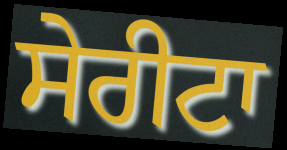
ਸੇਰੀਟਾ